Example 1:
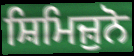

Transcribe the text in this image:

ਸ਼ਿਮਿਜ਼ੁਨੋ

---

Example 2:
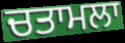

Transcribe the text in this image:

ਚਤਾਮਲਾ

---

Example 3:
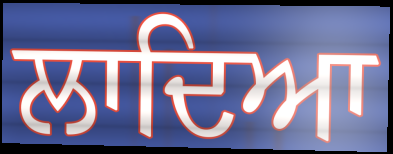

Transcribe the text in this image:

ਲਾਦਿਆ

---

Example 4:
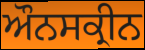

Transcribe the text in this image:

ਔਨਸਕ੍ਰੀਨ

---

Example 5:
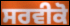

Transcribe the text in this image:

ਸਰਵੀਕੋ